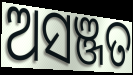
ଅସଞ୍ଜତ